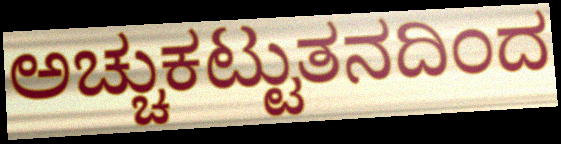
ಅಚ್ಚುಕಟ್ಟುತನದಿಂದ